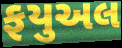
ફયુઅલ